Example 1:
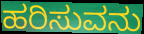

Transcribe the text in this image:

ಹರಿಸುವನು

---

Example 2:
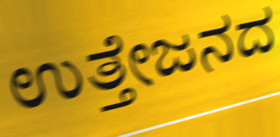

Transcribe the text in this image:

ಉತ್ತೇಜನದ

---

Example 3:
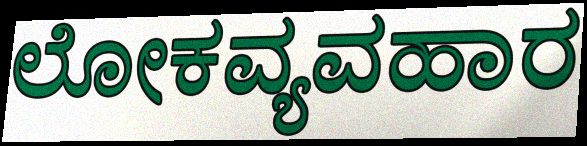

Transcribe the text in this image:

ಲೋಕವ್ಯವಹಾರ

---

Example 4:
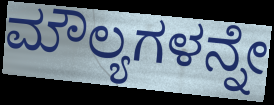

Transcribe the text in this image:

ಮೌಲ್ಯಗಳನ್ನೇ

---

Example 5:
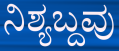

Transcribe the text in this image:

ನಿಶ್ಯಬ್ದವು